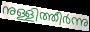
നുള്ളിത്തീർന്നു